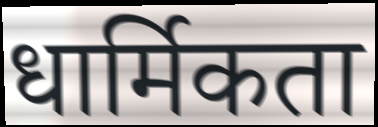
धार्मिकता